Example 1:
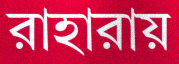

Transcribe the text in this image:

রাহারায়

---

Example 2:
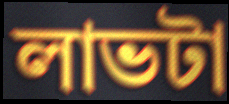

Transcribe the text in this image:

লাভটা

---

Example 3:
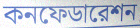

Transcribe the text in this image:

কনফেডারেশন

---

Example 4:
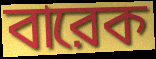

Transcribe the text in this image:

বারেক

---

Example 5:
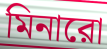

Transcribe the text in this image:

মিনারো